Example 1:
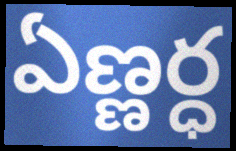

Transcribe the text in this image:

ఏణ్ణర్ధ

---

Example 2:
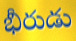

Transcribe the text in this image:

భీరుడు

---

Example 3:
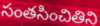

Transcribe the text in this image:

సంతసించితిని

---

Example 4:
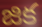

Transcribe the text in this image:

జిక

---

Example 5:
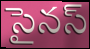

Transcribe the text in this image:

సైనస్